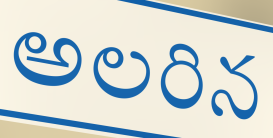
అలరిన